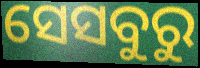
ସେସବୁରୁ